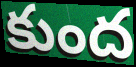
కుంద